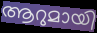
ആറുമായി